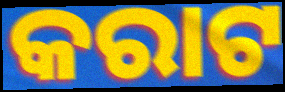
କରାଟ